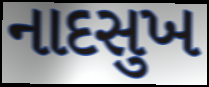
નાદસુખ